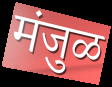
मंजुळ